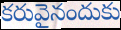
కరువైనందుకు